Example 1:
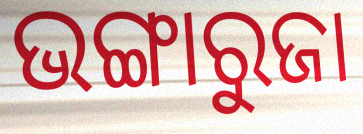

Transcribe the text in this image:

ଭଙ୍ଗାରୁଜା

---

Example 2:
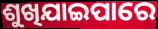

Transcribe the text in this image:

ଶୁଖିଯାଇପାରେ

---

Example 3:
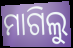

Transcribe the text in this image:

ମାଗିଲୁ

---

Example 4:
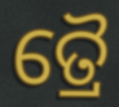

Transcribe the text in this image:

ତ୍ରୈ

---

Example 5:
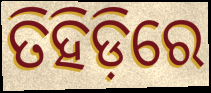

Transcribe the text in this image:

ତିହିଡ଼ିରେ